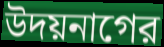
উদয়নাগের